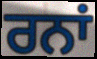
ਰਨਾਂ